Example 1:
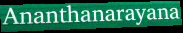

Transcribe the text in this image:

Ananthanarayana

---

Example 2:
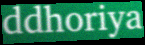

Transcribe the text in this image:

ddhoriya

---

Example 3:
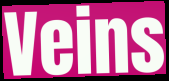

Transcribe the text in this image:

Veins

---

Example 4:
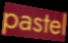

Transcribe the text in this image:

pastel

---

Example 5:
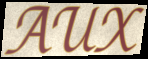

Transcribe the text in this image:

AUX